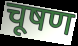
चूषण